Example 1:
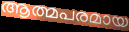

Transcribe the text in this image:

ആത്മപരമായ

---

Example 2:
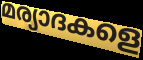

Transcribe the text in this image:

മര്യാദകളെ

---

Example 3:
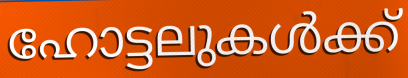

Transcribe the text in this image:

ഹോട്ടലുകൾക്ക്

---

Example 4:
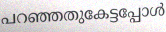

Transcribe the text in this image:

പറഞ്ഞതുകേട്ടപ്പോൾ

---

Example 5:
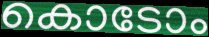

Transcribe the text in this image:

കൊടോം